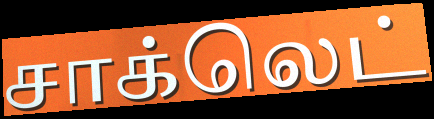
சாக்லெட்